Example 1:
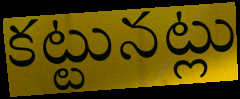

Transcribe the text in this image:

కట్టునట్లు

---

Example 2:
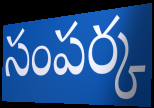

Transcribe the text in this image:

సంపర్క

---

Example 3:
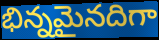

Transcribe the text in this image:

భిన్నమైనదిగా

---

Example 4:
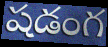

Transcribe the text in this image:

షడంగ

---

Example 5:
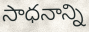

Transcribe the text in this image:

సాధనాన్ని